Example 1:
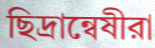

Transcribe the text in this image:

ছিদ্রান্বেষীরা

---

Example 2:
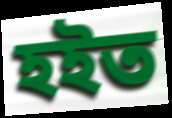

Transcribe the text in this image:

হইত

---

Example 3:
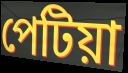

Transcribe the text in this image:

পেটিয়া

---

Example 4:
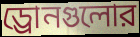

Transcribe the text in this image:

ড্রোনগুলোর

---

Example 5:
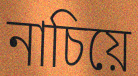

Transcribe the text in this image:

নাচিয়ে